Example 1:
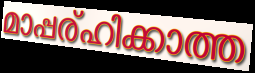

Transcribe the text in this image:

മാപ്പര്ഹിക്കാത്ത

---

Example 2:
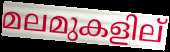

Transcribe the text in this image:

മലമുകളില്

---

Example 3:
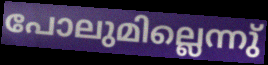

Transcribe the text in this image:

പോലുമില്ലെന്നു്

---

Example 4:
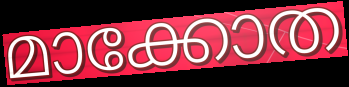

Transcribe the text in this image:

മാക്കോത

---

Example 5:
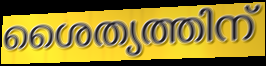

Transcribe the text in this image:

ശൈത്യത്തിന്